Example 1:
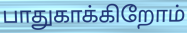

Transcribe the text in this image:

பாதுகாக்கிறோம்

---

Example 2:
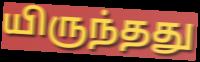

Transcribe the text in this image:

யிருந்தது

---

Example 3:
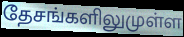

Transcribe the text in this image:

தேசங்களிலுமுள்ள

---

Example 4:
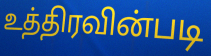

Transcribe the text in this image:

உத்திரவின்படி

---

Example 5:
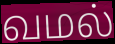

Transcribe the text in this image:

வமல்